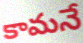
కామనే